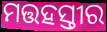
ମତ୍ତହସ୍ତୀର